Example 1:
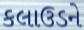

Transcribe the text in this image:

કલાઉડને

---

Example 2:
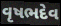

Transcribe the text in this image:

વૃષભદેવ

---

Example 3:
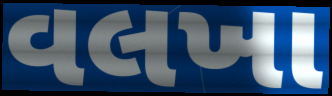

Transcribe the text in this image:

વલખા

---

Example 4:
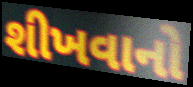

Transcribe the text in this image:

શીખવાનો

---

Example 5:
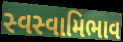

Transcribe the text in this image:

સ્વસ્વામિભાવ